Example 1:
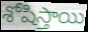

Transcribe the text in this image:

శోషిస్తాయి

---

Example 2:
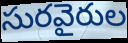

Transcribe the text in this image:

సురవైరుల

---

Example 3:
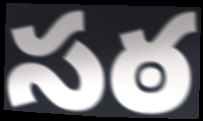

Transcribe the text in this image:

సఠ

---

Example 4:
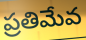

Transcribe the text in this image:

ప్రతిమేవ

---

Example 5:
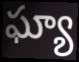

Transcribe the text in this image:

ఘ్యా